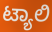
ಟ್ಯಾಲಿ